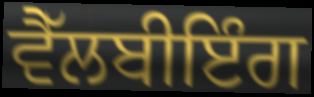
ਵੈੱਲਬੀਇੰਗ